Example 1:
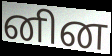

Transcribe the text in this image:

னின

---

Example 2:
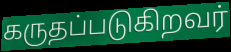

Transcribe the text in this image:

கருதப்படுகிறவர்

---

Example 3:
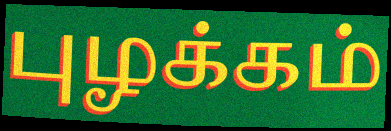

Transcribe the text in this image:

புழக்கம்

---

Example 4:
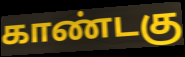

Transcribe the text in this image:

காண்டகு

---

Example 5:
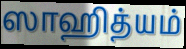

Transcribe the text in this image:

ஸாஹித்யம்